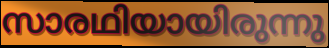
സാരഥിയായിരുന്നു